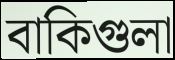
বাকিগুলা